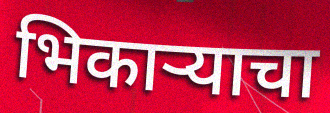
भिकाऱ्याचा